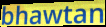
bhawtan